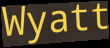
Wyatt